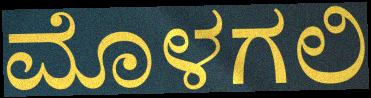
ಮೊಳಗಲಿ